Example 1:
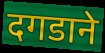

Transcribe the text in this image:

दगडाने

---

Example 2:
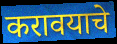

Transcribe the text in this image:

करावयाचे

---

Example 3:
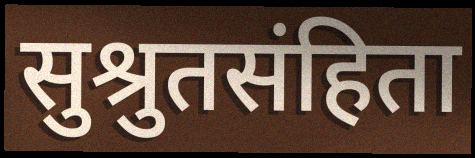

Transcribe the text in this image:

सुश्रुतसंहिता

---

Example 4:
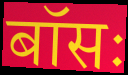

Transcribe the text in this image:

बॉसः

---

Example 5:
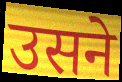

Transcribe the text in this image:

उसने